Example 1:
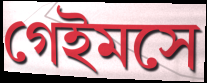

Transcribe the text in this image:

গেইমসে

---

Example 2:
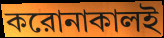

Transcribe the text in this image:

করোনাকালই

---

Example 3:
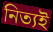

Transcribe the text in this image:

নিত্যই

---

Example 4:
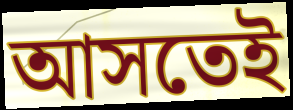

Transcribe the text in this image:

আসতেই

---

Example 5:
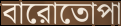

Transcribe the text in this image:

বারোতোপা